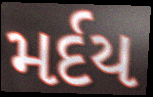
મર્દય